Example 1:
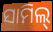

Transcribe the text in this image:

ସାମିଲ୍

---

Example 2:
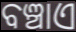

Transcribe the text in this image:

ବଞ୍ଚାଏ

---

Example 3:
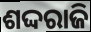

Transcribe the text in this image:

ଶଦ୍ଦରାଜି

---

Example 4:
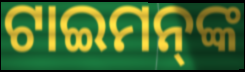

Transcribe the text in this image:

ଟାଇମନ୍‌ଙ୍କ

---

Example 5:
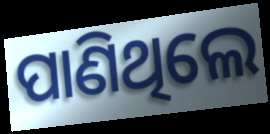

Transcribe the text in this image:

ପାଣିଥିଲେ